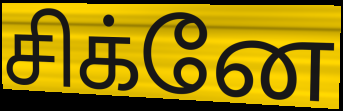
சிக்னே